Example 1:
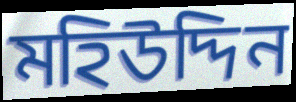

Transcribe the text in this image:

মহিউদ্দিন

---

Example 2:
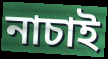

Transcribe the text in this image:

নাচাই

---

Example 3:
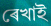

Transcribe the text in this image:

ৰেখাই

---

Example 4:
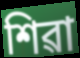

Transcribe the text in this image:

শিৱা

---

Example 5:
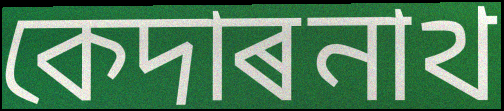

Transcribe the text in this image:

কেদাৰনাথ